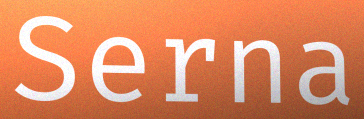
Serna